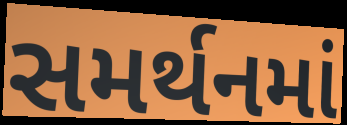
સમર્થનમાં